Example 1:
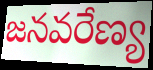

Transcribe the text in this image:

జనవరేణ్య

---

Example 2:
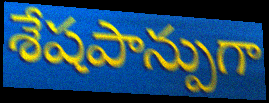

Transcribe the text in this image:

శేషపాన్పుగా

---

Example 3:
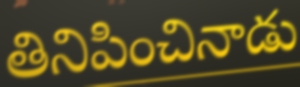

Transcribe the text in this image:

తినిపించినాడు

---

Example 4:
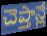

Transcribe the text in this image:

చెప్తాన్లే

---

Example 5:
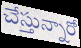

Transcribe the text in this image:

చేస్తున్నారో